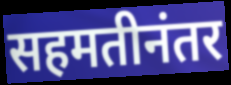
सहमतीनंतर